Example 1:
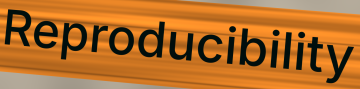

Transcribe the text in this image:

Reproducibility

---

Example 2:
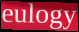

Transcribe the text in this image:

eulogy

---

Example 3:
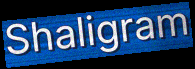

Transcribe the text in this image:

Shaligram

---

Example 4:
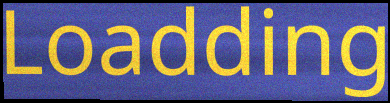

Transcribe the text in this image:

Loadding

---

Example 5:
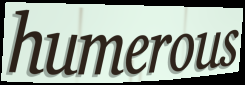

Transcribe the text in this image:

humerous